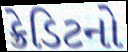
ક્રેડિટનો